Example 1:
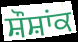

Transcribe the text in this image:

ਸ਼ੌਸ਼ਾਂਕ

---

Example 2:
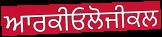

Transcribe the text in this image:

ਆਰਕੀਓਲੋਜੀਕਲ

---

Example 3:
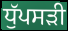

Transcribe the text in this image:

ਧੁੱਪਸੜੀ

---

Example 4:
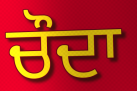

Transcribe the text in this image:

ਚੌਦਾ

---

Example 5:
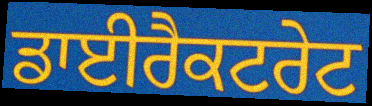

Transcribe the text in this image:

ਡਾਈਰੈਕਟਰੇਟ